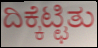
ದಿಕ್ಕೆಟ್ಟಿತು